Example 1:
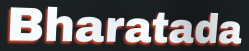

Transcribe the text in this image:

Bharatada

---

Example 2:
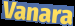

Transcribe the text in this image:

Vanara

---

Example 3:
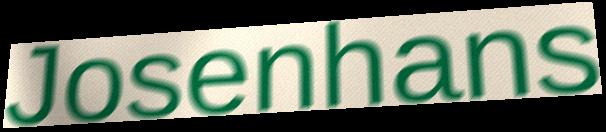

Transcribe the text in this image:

Josenhans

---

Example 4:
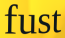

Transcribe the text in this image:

fust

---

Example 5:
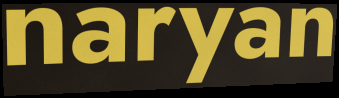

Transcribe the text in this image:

naryan